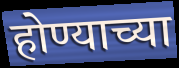
होण्‍याच्‍या